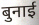
बुनाई